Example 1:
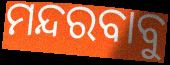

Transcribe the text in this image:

ମନ୍ଦରବାବୁ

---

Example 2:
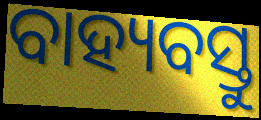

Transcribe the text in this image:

ବାହ୍ୟବସ୍ତୁ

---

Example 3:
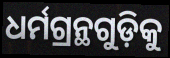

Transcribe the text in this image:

ଧର୍ମଗ୍ରନ୍ଥଗୁଡ଼ିକୁ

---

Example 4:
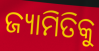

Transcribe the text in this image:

ଜ୍ୟାମିତିକୁ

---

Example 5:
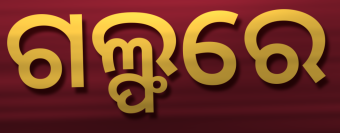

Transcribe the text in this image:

ଗଲ୍ଫରେ